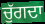
ਚੁੱਗਦਾ